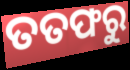
ତତଫରୁ